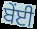
ਬੇਂਈ